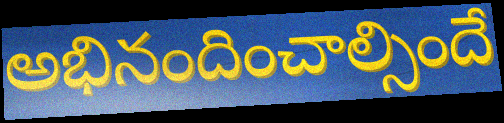
అభినందించాల్సిందే